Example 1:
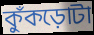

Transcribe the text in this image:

কুঁকড়োটা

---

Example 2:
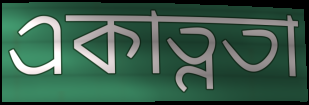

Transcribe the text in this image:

একাত্নতা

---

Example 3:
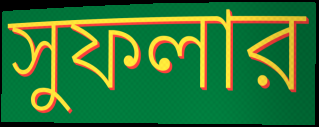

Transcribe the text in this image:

সুফলার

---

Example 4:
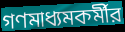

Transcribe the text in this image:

গণমাধ্যমকর্মীর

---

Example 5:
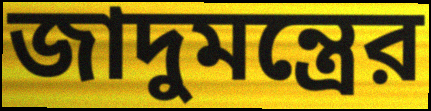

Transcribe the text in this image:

জাদুমন্ত্রের